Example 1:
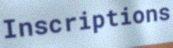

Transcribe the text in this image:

Inscriptions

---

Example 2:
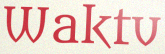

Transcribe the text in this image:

Waktu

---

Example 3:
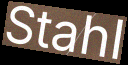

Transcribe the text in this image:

Stahl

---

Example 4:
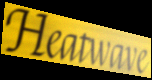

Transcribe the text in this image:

Heatwave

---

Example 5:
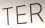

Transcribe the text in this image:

TER